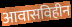
आवासविहीन